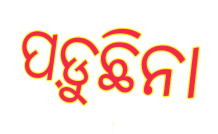
ପଡ଼ୁଛିନା